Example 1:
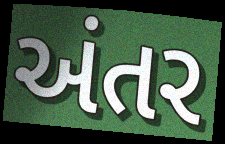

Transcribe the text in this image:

અંતર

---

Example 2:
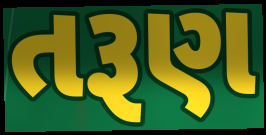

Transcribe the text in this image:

તરૂણ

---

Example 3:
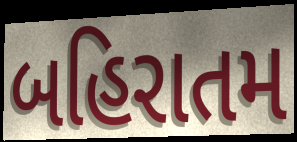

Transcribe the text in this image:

બહિરાતમ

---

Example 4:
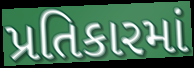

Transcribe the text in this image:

પ્રતિકારમાં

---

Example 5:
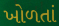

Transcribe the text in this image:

ખોળતાં